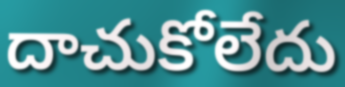
దాచుకోలేదు